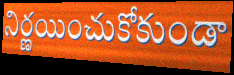
నిర్ణయించుకోకుండా